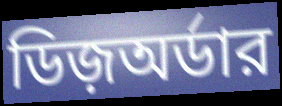
ডিজ়অর্ডার